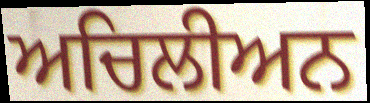
ਅਚਿਲੀਅਨ